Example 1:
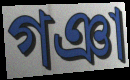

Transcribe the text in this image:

গঞা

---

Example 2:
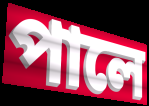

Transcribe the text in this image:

পালে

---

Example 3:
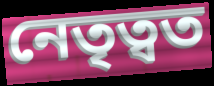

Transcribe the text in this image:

নেতৃত্বত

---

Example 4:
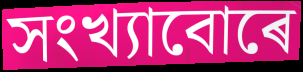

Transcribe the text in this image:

সংখ্যাবোৰে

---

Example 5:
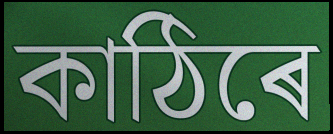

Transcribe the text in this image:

কাঠিৰে